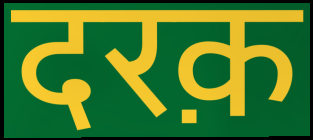
दरक़